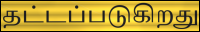
தட்டப்படுகிறது